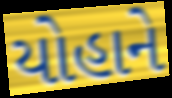
યોહાને